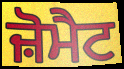
ਜ਼ੋਮੈਟ